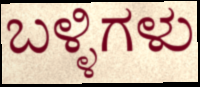
ಬಳ್ಳಿಗಳು